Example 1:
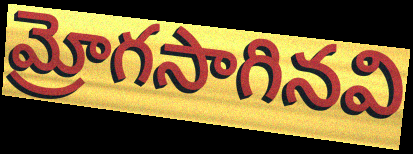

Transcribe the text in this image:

మ్రోగసాగినవి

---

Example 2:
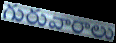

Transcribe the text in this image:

గురువారాలు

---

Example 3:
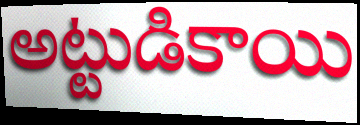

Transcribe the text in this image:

అట్టుడికాయి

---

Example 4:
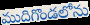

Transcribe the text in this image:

ముదిగొండలోను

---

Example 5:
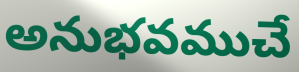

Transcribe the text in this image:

అనుభవముచే